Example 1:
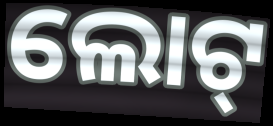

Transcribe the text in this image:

ଲୋଟ୍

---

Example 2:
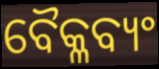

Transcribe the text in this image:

ବୈକ୍ଳବ୍ୟଂ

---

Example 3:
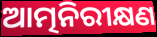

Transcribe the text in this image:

ଆତ୍ମନିରୀକ୍ଷଣ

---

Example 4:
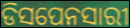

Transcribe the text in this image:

ଡିସପେନସାରୀ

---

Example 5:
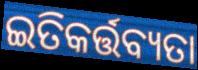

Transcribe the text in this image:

ଇତିକର୍ତ୍ତବ୍ୟତା